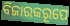
ବିଜାରକରୂପେ